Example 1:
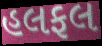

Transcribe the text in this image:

હલફલ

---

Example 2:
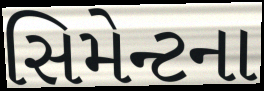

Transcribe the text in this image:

સિમેન્ટના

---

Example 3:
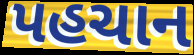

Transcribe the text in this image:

પહચાન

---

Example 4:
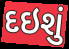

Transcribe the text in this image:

દઇશું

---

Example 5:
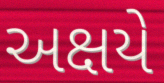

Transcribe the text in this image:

અક્ષયે